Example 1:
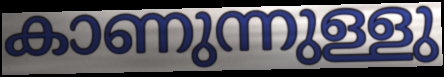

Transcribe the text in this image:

കാണുന്നുള്ളു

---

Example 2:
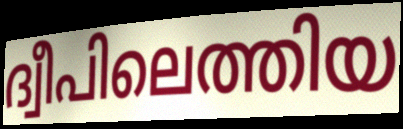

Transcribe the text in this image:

ദ്വീപിലെത്തിയ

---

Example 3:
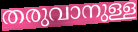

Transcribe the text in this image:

തരുവാനുള്ള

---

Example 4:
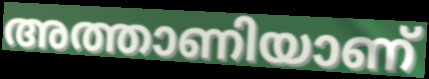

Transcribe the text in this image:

അത്താണിയാണ്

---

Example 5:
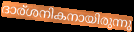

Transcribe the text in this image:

ദാര്ശനികനായിരുന്നു